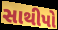
સાથીપો